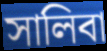
সালিবা